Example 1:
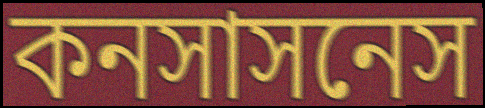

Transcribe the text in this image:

কনসাসনেস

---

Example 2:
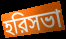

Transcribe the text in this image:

হরিসভা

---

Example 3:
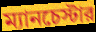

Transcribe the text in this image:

ম্যানচেস্টার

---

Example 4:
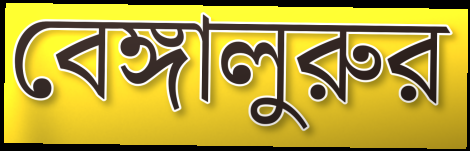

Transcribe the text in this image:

বেঙ্গালুরুর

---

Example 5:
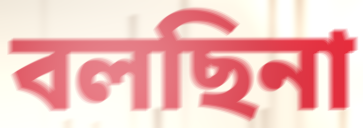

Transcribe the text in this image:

বলছিনা